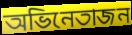
অভিনেতাজন